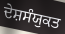
ਦੇਸ਼ਸੰਯੁਕਤ